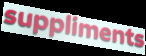
suppliments